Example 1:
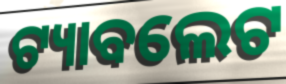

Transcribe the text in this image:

ଟ୍ୟାବଲେଟ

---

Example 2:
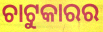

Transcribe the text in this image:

ଚାଟୁକାରର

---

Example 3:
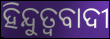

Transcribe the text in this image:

ହିନ୍ଦୁତ୍ୱବାଦୀ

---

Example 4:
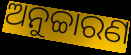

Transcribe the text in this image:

ଅନୁଚ୍ଚାରଣ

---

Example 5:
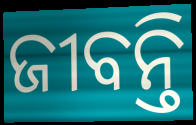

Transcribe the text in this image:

ଜୀବନ୍ତି